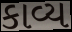
કાવ્ય